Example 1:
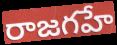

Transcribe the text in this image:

రాజగహే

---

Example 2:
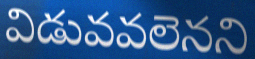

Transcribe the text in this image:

విడువవలెనని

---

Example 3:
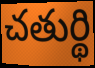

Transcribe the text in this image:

చతుర్థి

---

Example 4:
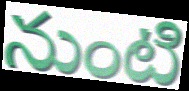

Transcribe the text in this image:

నుంటి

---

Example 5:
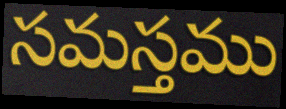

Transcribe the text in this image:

సమస్తము